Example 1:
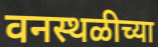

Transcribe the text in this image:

वनस्थळीच्या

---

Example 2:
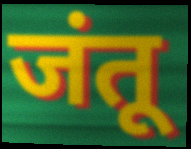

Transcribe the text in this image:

जंतू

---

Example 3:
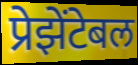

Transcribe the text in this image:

प्रेझेंटेबल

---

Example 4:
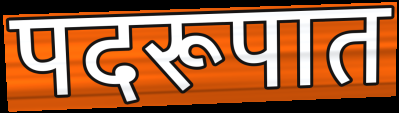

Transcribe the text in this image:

पदरूपात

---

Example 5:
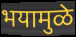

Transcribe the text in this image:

भयामुळे